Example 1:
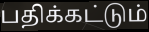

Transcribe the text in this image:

பதிக்கட்டும்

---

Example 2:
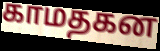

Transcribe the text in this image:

காமதகன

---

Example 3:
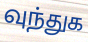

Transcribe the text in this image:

வுந்துக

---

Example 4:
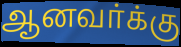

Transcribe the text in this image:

ஆனவர்க்கு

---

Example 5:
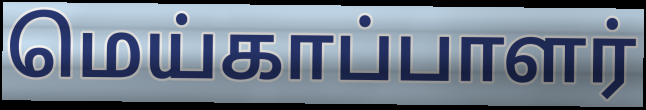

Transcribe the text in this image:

மெய்காப்பாளர்